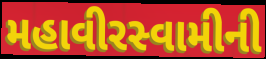
મહાવીરસ્વામીની